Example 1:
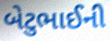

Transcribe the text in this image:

બેટુભાઈની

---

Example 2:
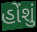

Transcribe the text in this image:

હોંશું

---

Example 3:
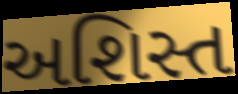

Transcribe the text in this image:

અશિસ્ત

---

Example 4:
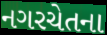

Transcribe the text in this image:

નગરચેતના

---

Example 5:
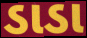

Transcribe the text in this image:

ડાડા